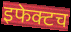
इफेक्टच